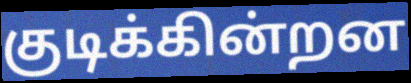
குடிக்கின்றன